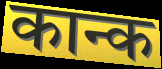
कान्क